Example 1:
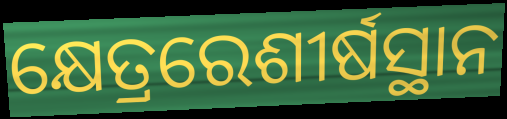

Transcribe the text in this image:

କ୍ଷେତ୍ରରେଶୀର୍ଷସ୍ଥାନ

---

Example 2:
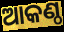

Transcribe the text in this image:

ଆକଣ୍ଠ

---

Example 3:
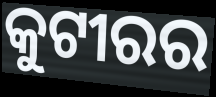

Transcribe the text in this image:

କୁଟୀରର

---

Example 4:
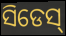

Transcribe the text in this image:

ସିଡେସ୍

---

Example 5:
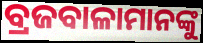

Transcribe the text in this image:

ବ୍ରଜବାଳାମାନଙ୍କୁ